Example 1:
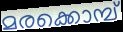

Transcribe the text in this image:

മരക്കൊമ്പ്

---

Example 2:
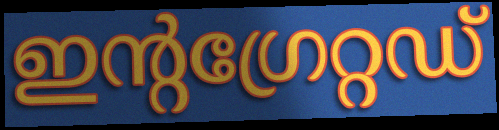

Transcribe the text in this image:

ഇന്റഗ്രേറ്റഡ്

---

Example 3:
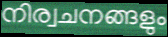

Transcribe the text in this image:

നിര്വചനങ്ങളും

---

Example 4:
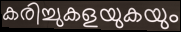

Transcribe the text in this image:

കരിച്ചുകളയുകയും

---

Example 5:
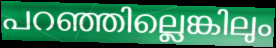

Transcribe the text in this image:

പറഞ്ഞില്ലെങ്കിലും